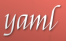
yaml